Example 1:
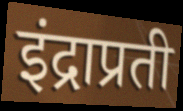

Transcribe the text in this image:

इंद्राप्रती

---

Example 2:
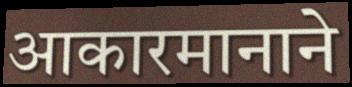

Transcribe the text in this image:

आकारमानाने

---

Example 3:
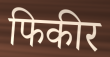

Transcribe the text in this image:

फिकीर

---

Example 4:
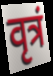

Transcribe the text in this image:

वृत्रं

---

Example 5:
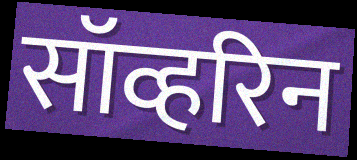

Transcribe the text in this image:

सॉव्हरिन